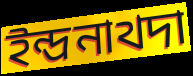
ইন্দ্রনাথদা